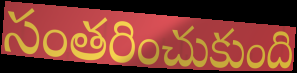
సంతరించుకుంది